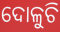
ଦୋଳୁଚି